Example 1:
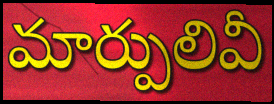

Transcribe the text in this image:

మార్పులివీ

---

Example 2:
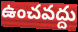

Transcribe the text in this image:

ఉంచవద్దు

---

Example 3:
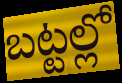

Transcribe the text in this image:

బట్టల్లో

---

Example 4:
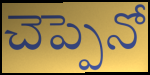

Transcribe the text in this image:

చెప్పెనో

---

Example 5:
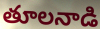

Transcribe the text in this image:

తూలనాడి